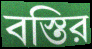
বস্তির